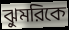
ঝুমরিকে